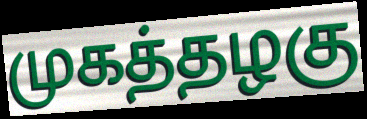
முகத்தழகு